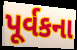
પૂર્વકના